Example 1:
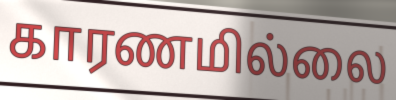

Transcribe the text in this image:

காரணமில்லை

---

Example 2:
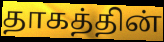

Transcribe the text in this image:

தாகத்தின்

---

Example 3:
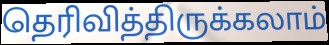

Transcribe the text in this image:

தெரிவித்திருக்கலாம்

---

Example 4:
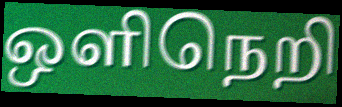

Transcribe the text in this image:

ஒளிநெறி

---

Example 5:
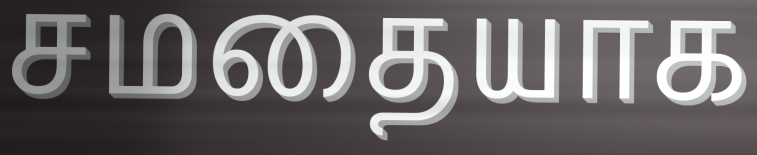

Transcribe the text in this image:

சமதையாக